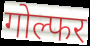
गोल्फर